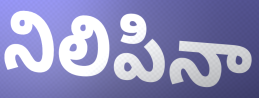
నిలిపినా